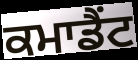
ਕਮਾਡੈਂਟ